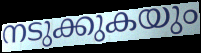
നടുക്കുകയും